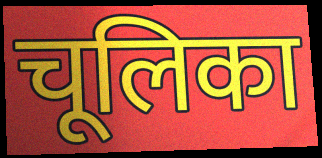
चूलिका